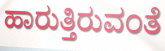
ಹಾರುತ್ತಿರುವಂತೆ